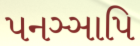
પનઞ્ઞાપિ